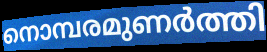
നൊമ്പരമുണർത്തി